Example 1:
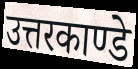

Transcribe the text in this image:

उत्तरकाण्डे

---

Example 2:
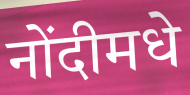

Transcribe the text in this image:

नोंदीमधे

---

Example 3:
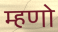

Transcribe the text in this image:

म्हणो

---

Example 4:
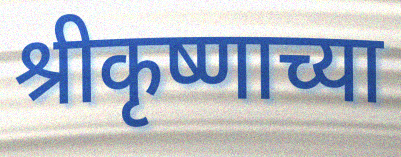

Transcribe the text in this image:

श्रीकृष्णाच्या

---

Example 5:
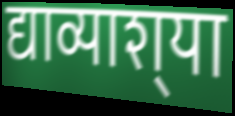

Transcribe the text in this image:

द्याव्याश्या